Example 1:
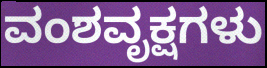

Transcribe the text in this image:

ವಂಶವೃಕ್ಷಗಳು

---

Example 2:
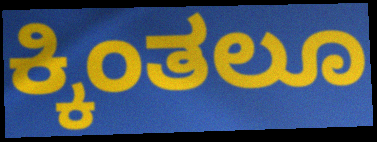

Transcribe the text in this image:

ಕ್ಕಿಂತಲೂ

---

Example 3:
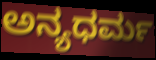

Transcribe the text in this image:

ಅನ್ಯಧರ್ಮ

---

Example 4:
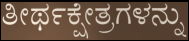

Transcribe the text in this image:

ತೀರ್ಥಕ್ಷೇತ್ರಗಳನ್ನು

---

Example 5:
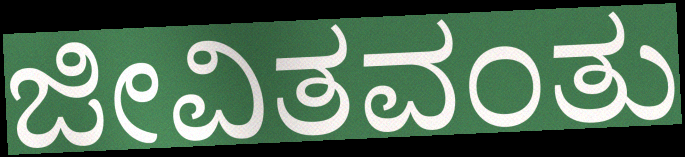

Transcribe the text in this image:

ಜೀವಿತವಂತು